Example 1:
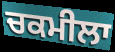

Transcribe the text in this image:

ਚਕਮੀਲਾ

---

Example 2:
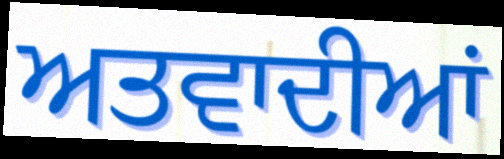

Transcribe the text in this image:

ਅਤਵਾਦੀਆਂ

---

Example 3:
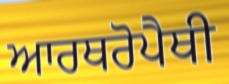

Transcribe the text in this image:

ਆਰਥਰੋਪੈਥੀ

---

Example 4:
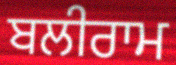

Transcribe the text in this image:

ਬਲੀਰਾਮ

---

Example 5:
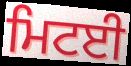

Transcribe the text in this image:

ਮਿਟਈ